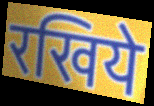
रखिये